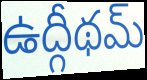
ఉద్గీథమ్